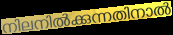
നിലനിൽക്കുന്നതിനാൽ